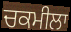
ਚਕਮੀਲਾ